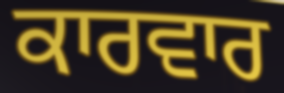
ਕਾਰਵਾਰ